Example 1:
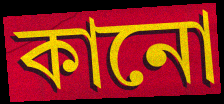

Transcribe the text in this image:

কানো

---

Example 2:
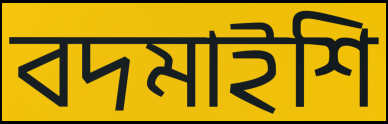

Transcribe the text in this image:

বদমাইশি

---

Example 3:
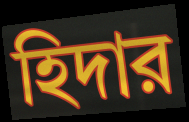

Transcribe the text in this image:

হিদার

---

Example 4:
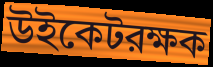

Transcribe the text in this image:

উইকেটরক্ষক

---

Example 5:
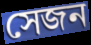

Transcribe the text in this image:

সেজন